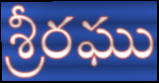
శ్రీరఘు